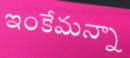
ఇంకేమన్నా